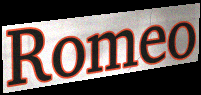
Romeo